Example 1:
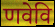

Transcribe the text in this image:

णवेवि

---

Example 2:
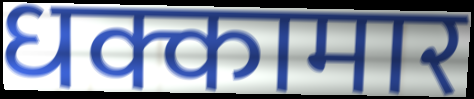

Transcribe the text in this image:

धक्कामार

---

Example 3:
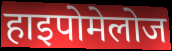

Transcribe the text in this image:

हाइपोमेलोज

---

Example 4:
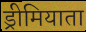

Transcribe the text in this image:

ड्रीमियाता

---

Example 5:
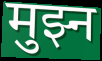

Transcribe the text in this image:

मुझ्न